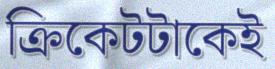
ক্রিকেটটাকেই